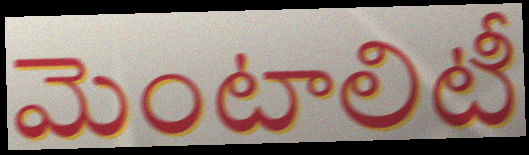
మెంటాలిటీ